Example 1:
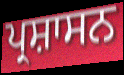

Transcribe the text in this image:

ਪ੍ਰਸ਼ਾਸਨ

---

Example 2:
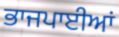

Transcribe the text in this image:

ਭਾਜਪਾਈਆਂ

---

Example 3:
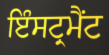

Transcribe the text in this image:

ਇੰਸਟ੍ਰਮੈਂਟ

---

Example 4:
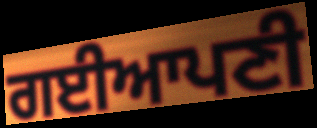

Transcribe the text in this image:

ਗਈਆਪਣੀ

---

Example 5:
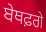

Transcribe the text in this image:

ਬੇਥਫ਼ਗੇ